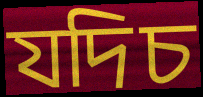
যদিচ